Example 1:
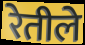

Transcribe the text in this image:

रेतीले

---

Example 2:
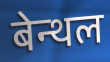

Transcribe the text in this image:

बेन्थल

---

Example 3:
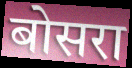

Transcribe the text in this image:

बोसरा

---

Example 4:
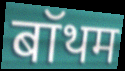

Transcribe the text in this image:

बॉथम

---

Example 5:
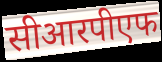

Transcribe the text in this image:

सीआरपीएफ